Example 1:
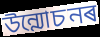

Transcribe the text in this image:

উন্মোচনৰ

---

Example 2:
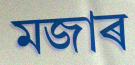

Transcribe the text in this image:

মজাৰ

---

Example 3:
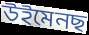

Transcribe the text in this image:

উইমেনছ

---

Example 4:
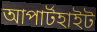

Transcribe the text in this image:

আপাৰ্টহাইট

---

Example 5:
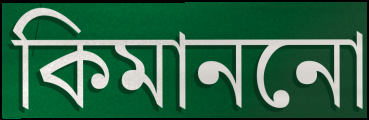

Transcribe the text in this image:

কিমাননো